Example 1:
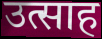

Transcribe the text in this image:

उत्‍साह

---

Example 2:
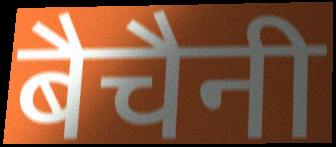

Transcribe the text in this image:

बैचैनी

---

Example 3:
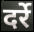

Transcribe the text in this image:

दर्रे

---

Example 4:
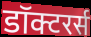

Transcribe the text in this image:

डॉक्टरर्स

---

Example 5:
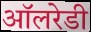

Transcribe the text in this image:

ऑलरेडी